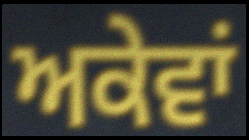
ਅਕੇਵਾਂ